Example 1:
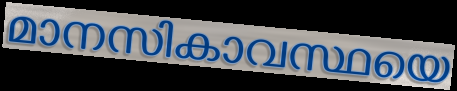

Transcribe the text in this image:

മാനസികാവസ്ഥയെ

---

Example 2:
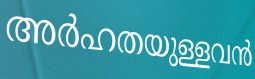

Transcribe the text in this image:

അർഹതയുള്ളവൻ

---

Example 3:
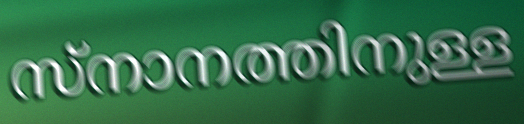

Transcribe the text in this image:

സ്നാനത്തിനുള്ള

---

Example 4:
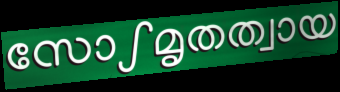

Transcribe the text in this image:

സോഽമൃതത്വായ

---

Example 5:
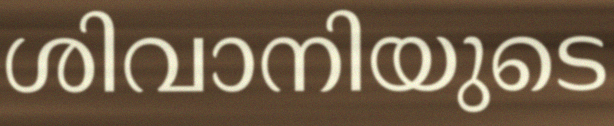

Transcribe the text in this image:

ശിവാനിയുടെ